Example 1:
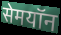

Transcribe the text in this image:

सेमयॉन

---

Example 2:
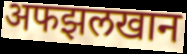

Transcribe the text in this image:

अफझलखान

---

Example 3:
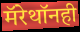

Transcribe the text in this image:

मॅरेथॉनही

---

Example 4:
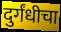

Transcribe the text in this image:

दुर्गंधीचा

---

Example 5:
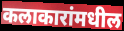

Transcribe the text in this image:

कलाकारांमधील